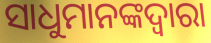
ସାଧୁମାନଙ୍କଦ୍ଵାରା